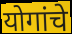
योगांचे